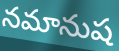
నమానుష